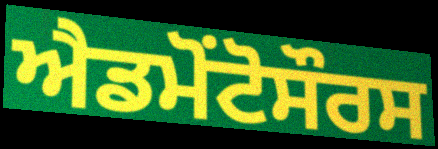
ਐਡਮੋਂਟੋਸੌਰਸ